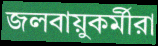
জলবায়ুকর্মীরা